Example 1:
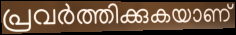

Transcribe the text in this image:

പ്രവർത്തിക്കുകയാണ്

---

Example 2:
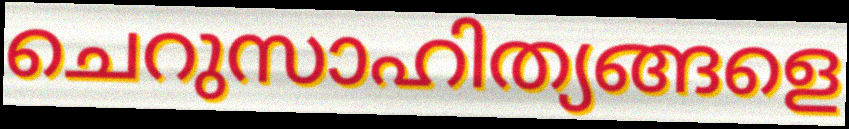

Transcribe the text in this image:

ചെറുസാഹിത്യങ്ങളെ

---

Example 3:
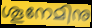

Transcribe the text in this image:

ശൂനേമിനു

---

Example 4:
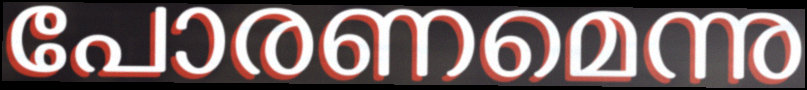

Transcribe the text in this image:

പോരണമെന്നു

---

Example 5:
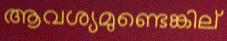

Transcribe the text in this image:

ആവശ്യമുണ്ടെങ്കില്